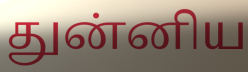
துன்னிய